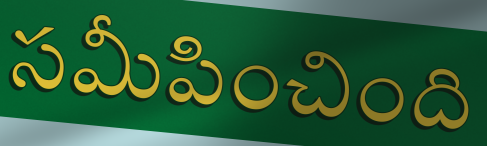
సమీపించింది